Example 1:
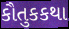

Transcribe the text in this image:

કૌતુકકથા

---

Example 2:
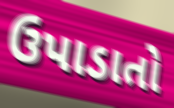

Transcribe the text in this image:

ઉપાડાતો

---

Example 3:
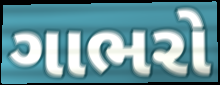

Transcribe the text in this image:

ગાભરો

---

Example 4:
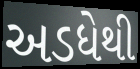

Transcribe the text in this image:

અડધેથી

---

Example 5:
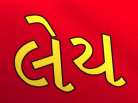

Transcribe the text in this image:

લેય